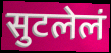
सुटलेलं